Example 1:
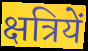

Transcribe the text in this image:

क्षत्रियें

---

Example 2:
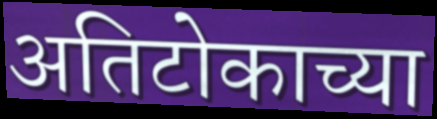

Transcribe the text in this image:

अतिटोकाच्या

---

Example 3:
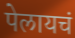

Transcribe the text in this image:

पेलायचं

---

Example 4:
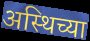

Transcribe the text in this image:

अस्थिच्या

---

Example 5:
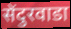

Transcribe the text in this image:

सेंदुरवाडा